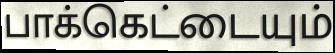
பாக்கெட்டையும்